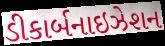
ડીકાર્બનાઇઝેશન